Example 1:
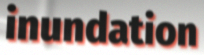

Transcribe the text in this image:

inundation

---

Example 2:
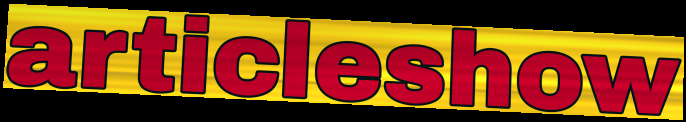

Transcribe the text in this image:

articleshow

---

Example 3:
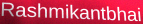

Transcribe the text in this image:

Rashmikantbhai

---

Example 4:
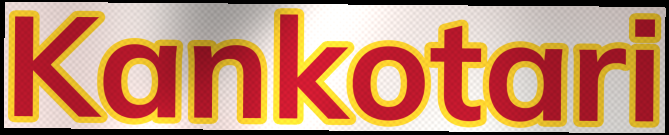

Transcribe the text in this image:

Kankotari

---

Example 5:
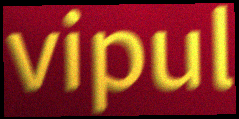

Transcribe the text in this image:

vipul